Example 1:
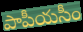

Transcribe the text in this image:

పాపీయసీం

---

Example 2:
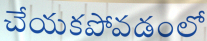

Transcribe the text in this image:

చేయకపోవడంలో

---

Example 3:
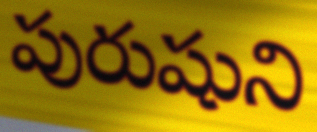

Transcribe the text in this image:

పురుషుని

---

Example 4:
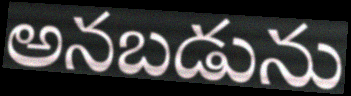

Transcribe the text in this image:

అనబడును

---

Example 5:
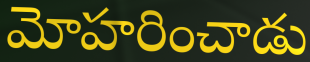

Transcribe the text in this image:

మోహరించాడు